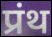
प्रंथ